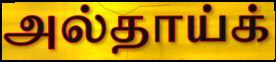
அல்தாய்க்